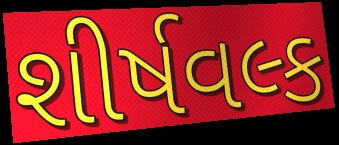
શીર્ષવલ્ક